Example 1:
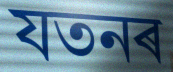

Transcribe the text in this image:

যতনৰ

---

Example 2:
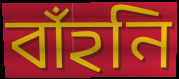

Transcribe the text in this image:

বাঁহনি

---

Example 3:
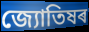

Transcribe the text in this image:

জ্যোতিষৰ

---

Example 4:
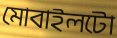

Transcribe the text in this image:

মোবাইলটো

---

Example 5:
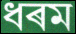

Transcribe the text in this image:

ধৰম